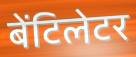
बेंटिलेटर